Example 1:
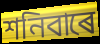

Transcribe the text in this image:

শনিবাৰে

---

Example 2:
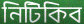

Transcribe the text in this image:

নিটিকিব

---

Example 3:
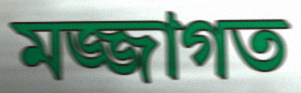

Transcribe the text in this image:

মজ্জাগত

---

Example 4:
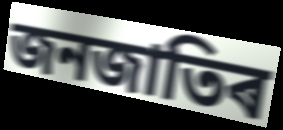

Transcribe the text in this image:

জনজাতিৰ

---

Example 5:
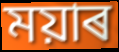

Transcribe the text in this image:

ময়াৰ